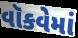
વૉકવેમાં